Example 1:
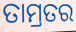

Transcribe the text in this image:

ତାମ୍ରତର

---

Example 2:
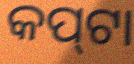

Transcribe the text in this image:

କପ୍‍ଟା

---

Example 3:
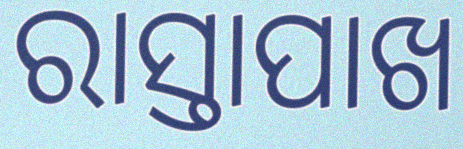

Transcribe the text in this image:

ରାସ୍ତାପାଖ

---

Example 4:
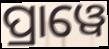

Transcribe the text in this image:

ପ୍ରାୱେ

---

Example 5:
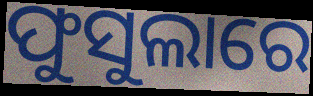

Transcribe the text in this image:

ଫୁସୁଲାରେ